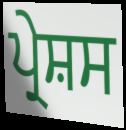
ਪ੍ਰੇਸ਼ਸ